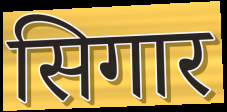
सिगार